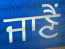
ਜਾਣੈਂ